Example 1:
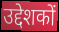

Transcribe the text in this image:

उद्देशकों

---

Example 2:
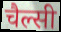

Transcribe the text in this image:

चैल्सी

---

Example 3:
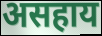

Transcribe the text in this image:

असहाय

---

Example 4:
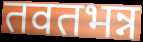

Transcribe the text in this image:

तवतभन्न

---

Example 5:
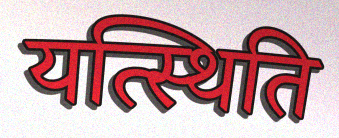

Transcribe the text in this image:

यत्स्थिति